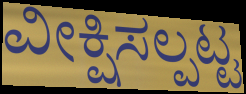
ವೀಕ್ಷಿಸಲ್ಪಟ್ಟ